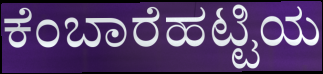
ಕೆಂಬಾರೆಹಟ್ಟಿಯ